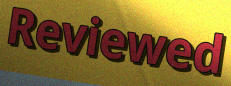
Reviewed